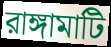
রাঙ্গামাটি